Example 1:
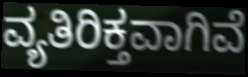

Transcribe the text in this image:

ವ್ಯತಿರಿಕ್ತವಾಗಿವೆ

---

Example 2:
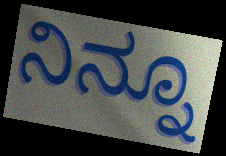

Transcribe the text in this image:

ನಿನ್ನೂ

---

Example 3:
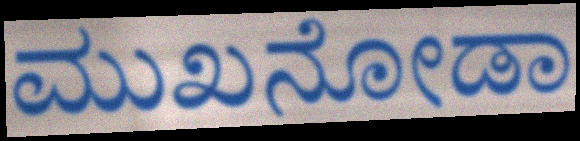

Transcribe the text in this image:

ಮುಖನೋಡಾ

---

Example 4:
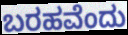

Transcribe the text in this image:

ಬರಹವೆಂದು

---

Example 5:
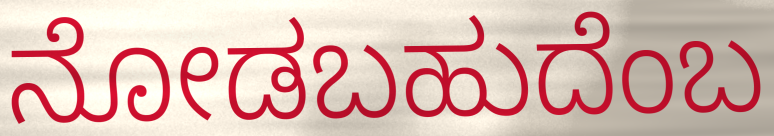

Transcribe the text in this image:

ನೋಡಬಹುದೆಂಬ